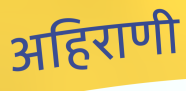
अहिराणी